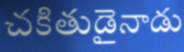
చకితుడైనాడు